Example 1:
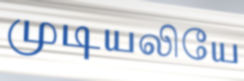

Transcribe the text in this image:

முடியலியே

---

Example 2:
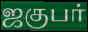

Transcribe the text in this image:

ஜகுபர்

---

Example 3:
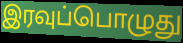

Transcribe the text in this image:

இரவுப்பொழுது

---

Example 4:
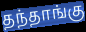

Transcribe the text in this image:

தந்தாங்கு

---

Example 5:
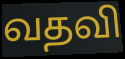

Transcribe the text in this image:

வதவி